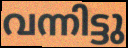
വന്നിട്ടു